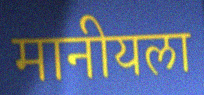
मानीयला